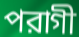
পরাগী